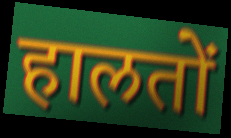
हालतों